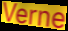
Verne